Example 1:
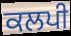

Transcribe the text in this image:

ਕਲਪੀ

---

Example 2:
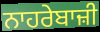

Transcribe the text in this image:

ਨਾਹਰੇਬਾਜ਼ੀ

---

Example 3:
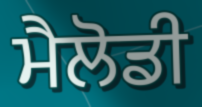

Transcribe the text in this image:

ਮੈਲੋਡੀ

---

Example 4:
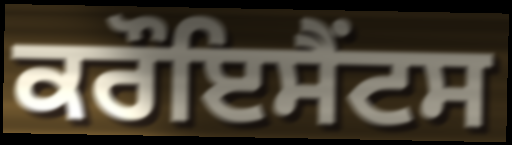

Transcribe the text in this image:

ਕਰੌਇਸੈਂਟਸ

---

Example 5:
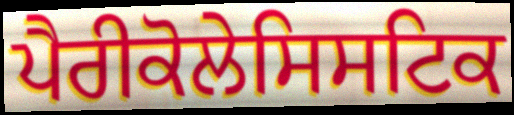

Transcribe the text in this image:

ਪੈਰੀਕੋਲੇਸਿਸਟਿਕ